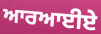
ਆਰਆਈਏ